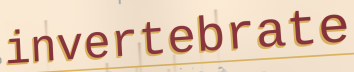
invertebrate